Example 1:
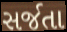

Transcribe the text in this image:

સર્જતા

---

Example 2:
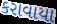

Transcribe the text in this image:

કરાવાયા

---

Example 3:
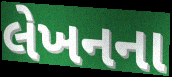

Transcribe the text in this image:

લેખનના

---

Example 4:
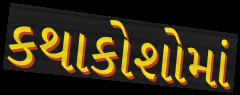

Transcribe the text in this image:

કથાકોશોમાં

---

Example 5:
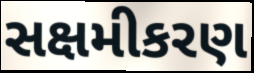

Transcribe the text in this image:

સક્ષમીકરણ